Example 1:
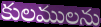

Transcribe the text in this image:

కులములను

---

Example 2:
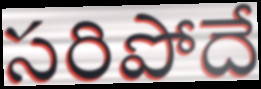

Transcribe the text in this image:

సరిపోదే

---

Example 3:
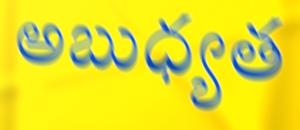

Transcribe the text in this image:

అబుధ్యత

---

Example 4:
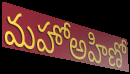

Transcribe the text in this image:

మహోఅహిణో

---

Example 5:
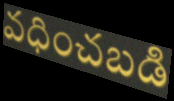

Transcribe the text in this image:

వధించబడి